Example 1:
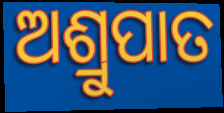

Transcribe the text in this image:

ଅଶ୍ରୁପାତ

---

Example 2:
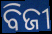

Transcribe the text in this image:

ବିଜୀ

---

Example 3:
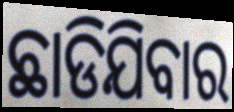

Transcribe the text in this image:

ଛାଡିଯିବାର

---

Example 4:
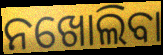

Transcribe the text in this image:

ନଖୋଲିବା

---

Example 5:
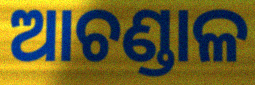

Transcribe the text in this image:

ଆଚଣ୍ଡାଳ